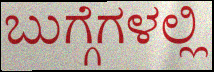
ಬುಗ್ಗೆಗಳಲ್ಲಿ